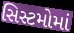
સિસ્ટમોમાં